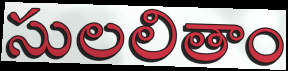
సులలితాం